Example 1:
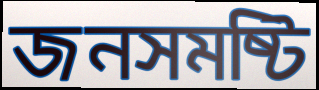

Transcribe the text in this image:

জনসমষ্টি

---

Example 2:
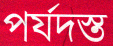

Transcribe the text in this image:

পর্যদস্ত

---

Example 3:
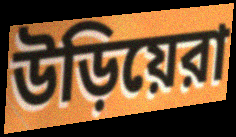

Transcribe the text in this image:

উড়িয়েরা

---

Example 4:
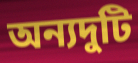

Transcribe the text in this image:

অন্যদুটি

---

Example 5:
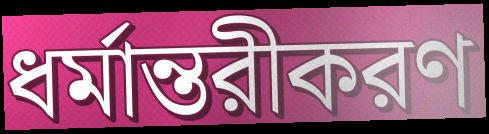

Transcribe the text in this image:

ধর্মান্তরীকরণ